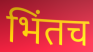
भिंतच